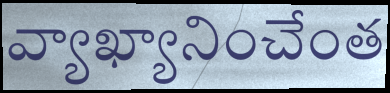
వ్యాఖ్యానించేంత